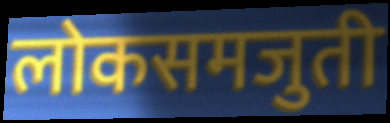
लोकसमजुती